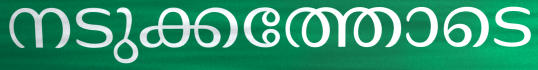
നടുക്കത്തോടെ